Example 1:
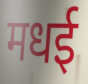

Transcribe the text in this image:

मधई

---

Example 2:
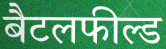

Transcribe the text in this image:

बैटलफील्ड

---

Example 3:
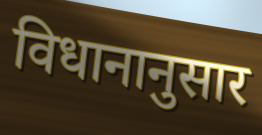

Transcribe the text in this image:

विधानानुसार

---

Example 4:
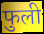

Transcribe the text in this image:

फुली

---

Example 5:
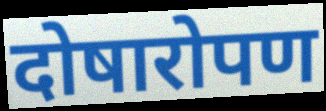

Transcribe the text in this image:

दोषारोपण